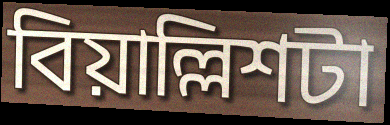
বিয়াল্লিশটা